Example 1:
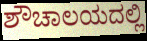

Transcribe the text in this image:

ಶೌಚಾಲಯದಲ್ಲಿ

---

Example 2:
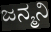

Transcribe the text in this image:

ಜನ್ಮನಿ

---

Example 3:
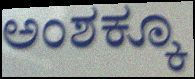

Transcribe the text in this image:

ಅಂಶಕ್ಕೂ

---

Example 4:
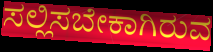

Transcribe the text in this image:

ಸಲ್ಲಿಸಬೇಕಾಗಿರುವ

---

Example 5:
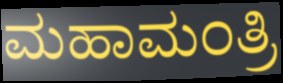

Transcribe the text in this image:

ಮಹಾಮಂತ್ರಿ